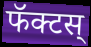
फॅक्टस्